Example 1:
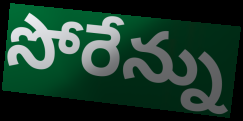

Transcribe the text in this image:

సోరేన్ను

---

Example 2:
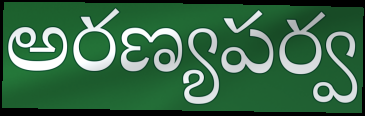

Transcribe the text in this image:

అరణ్యపర్వ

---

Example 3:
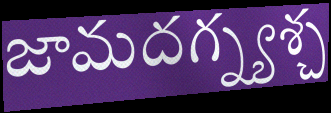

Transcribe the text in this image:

జామదగ్న్యశ్చ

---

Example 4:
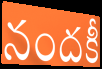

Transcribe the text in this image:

నందకీ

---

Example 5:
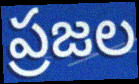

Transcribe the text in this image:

ప్రజల